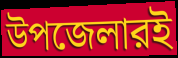
উপজেলারই